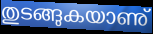
തുടങ്ങുകയാണു്